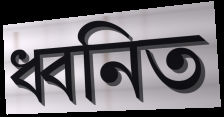
ধ্বনিত